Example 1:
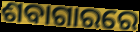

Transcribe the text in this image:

ଶବାଗାରରେ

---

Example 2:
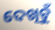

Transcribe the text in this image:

ଦେଖିଚୁଁ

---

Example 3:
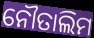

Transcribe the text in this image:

ନୌତାଲିମ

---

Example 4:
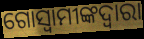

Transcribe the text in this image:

ଗୋସ୍ୱାମୀଙ୍କଦ୍ୱାରା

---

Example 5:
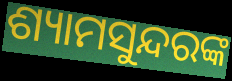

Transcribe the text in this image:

ଶ୍ୟାମସୁନ୍ଦରଙ୍କ